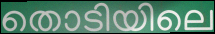
തൊടിയിലെ